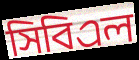
সিবিএল